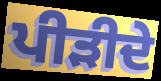
ਪੀੜੀਦੇ